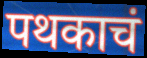
पथकाचं